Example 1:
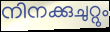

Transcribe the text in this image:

നിനക്കുചുറ്റും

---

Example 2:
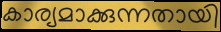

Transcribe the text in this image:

കാര്യമാക്കുന്നതായി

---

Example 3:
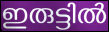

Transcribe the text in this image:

ഇരുട്ടിൽ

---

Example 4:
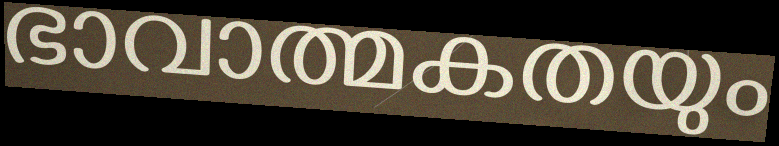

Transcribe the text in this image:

ഭാവാത്മകതയും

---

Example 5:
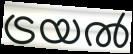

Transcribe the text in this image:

ട്രയൽ